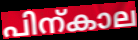
പിന്കാല